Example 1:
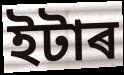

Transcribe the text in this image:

ইটাৰ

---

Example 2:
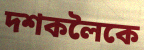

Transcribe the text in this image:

দশকলৈকে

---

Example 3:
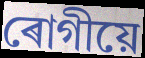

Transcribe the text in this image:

ৰোগীয়ে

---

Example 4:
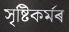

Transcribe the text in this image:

সৃষ্টিকৰ্মৰ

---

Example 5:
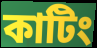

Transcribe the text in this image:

কাটিং